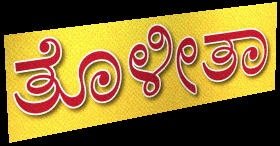
ತೊಳೀತಾ